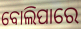
ବୋଲିପାରେ